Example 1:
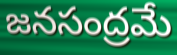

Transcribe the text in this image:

జనసంద్రమే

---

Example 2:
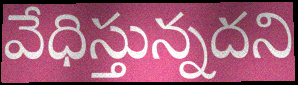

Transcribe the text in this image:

వేధిస్తున్నదని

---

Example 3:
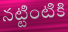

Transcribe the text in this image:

నట్టింటికి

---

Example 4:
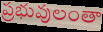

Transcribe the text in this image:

ప్రభువులంతా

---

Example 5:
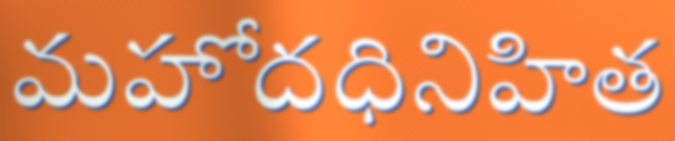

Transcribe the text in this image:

మహోదధినిహిత